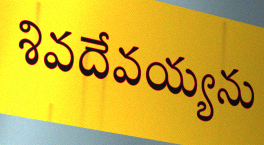
శివదేవయ్యను